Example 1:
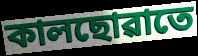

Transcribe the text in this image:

কালছোৱাতে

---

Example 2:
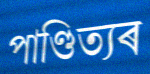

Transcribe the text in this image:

পাণ্ডিত্যৰ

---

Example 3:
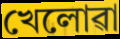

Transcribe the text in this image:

খেলোৱা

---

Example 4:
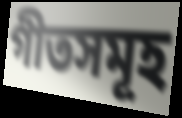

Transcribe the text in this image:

গীতসমূহ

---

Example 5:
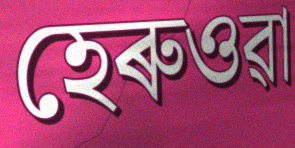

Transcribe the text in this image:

হেৰুওৱা